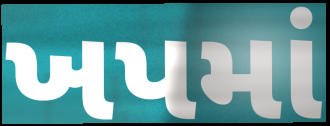
ખપમાં